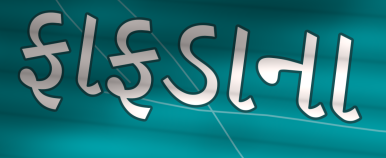
ફાફડાના